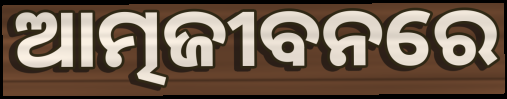
ଆତ୍ମଜୀବନରେ